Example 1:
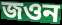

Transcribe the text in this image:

জওন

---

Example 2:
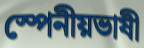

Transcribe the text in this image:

স্পেনীয়ভাষী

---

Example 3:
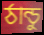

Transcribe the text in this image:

ঠান্ডু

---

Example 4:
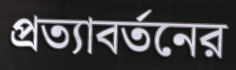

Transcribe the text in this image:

প্রত্যাবর্তনের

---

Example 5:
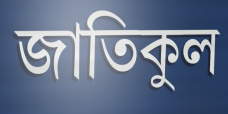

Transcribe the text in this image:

জাতিকুল